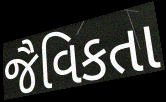
જૈવિકતા